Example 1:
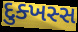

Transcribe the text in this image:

દુક્ખસ્સ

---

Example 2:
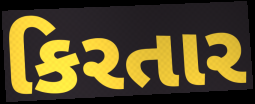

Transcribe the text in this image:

કિરતાર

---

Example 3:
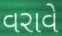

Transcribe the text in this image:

વરાવે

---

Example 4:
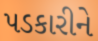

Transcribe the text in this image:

પડકારીને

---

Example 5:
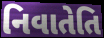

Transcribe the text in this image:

નિવાતેતિ